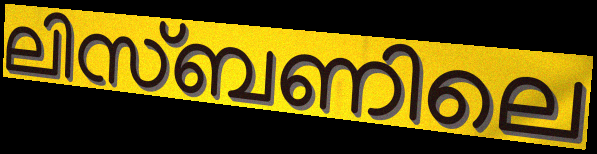
ലിസ്ബണിലെ